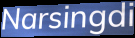
Narsingdi